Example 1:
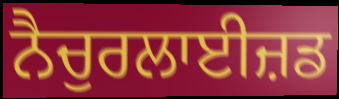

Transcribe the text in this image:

ਨੈਚੁਰਲਾਈਜ਼ਡ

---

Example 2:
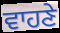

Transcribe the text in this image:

ਵਾਹਣੇ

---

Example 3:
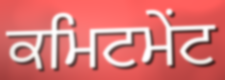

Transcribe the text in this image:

ਕਮਿਟਮੇਂਟ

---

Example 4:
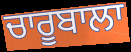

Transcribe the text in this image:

ਚਾਰੂਬਾਲਾ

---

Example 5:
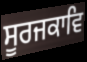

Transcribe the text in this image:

ਸੂਰਜਕਾਵਿ